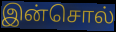
இன்சொல்